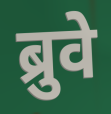
ब्रुवे